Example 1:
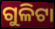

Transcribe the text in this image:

ଗୁଳିଟା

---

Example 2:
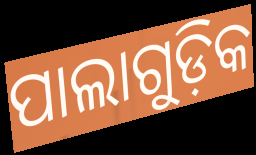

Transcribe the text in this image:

ପାଲାଗୁଡ଼ିକ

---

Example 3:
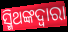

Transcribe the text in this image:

ସ୍ମିଥଙ୍କଦ୍ୱାରା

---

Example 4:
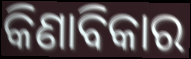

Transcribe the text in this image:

କିଣାବିକାର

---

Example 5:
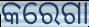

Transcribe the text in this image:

କରେଗା